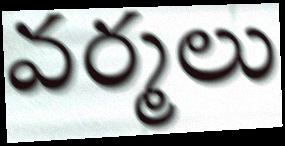
వర్మలు